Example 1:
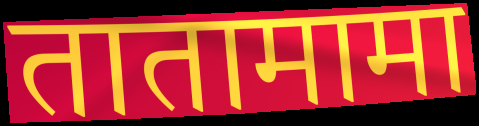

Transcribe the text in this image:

तातामामा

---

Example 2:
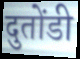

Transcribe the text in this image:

दुतोंडी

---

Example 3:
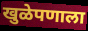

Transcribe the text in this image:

खुळेपणाला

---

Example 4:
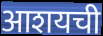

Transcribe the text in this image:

आशयची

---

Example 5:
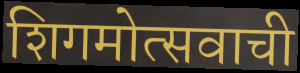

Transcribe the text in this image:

शिगमोत्सवाची